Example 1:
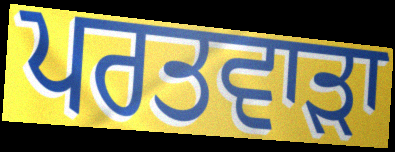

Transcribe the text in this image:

ਪਰਤਵਾੜਾ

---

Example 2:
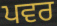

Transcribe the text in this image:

ਪਵਰ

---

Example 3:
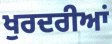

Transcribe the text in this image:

ਖੁਰਦਰੀਆਂ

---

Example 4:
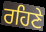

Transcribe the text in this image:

ਰਹਿਣੇ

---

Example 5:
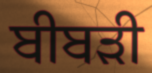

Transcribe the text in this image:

ਬੀਬੜੀ